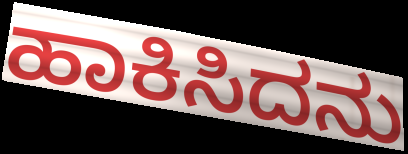
ಹಾಕಿಸಿದನು